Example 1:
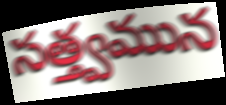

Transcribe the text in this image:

సత్త్వమున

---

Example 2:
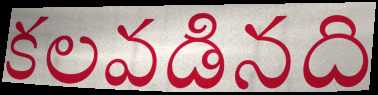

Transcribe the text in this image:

కలవడినది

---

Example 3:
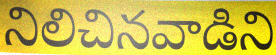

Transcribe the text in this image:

నిలిచినవాడిని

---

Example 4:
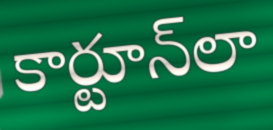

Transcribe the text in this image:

కార్టూన్‌లా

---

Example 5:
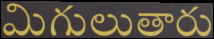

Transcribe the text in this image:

మిగులుతారు